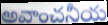
అవాంచనీయ